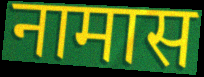
नामास